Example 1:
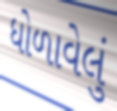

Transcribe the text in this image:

ધોળાવેલું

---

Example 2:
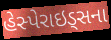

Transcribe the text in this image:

હેસ્પેરાઇડ્સના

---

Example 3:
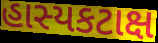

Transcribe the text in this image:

હાસ્યકટાક્ષ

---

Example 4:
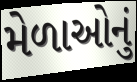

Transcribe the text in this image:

મેળાઓનું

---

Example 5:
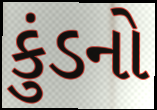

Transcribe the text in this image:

કુંડનો